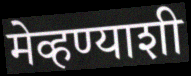
मेव्हण्याशी